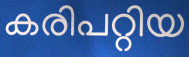
കരിപറ്റിയ